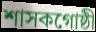
শাসকগোষ্ঠী